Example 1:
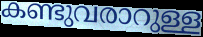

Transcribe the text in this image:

കണ്ടുവരാറുള്ള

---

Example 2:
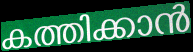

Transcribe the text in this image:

കത്തിക്കാൻ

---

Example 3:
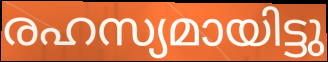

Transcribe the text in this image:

രഹസ്യമായിട്ടു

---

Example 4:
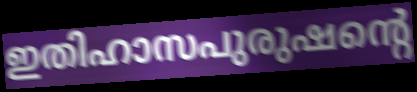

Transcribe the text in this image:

ഇതിഹാസപുരുഷന്റെ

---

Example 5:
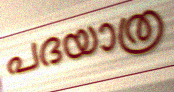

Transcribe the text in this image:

പദയാത്ര